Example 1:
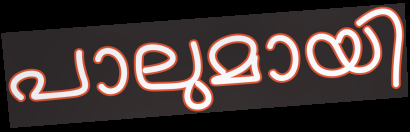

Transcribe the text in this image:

പാലുമായി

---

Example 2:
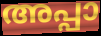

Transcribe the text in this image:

അപ്പാ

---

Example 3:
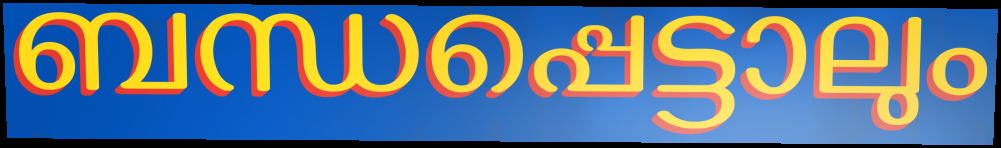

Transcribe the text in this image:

ബന്ധപ്പെട്ടാലും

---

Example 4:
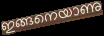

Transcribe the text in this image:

ഇങ്ങനെയാണു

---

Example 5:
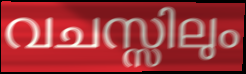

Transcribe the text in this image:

വചസ്സിലും